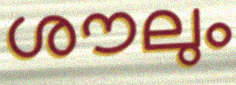
ശൗലും